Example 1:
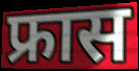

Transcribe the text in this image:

फ्रास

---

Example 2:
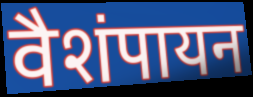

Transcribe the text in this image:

वैशंपायन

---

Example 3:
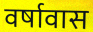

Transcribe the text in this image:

वर्षावास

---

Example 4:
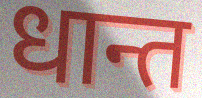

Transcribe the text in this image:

धान्त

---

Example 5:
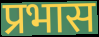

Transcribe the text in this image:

प्रभास